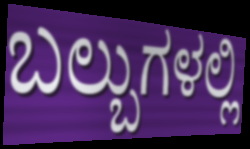
ಬಲ್ಬುಗಳಲ್ಲಿ